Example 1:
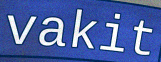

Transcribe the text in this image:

vakit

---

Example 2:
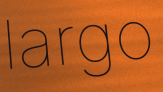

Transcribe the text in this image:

largo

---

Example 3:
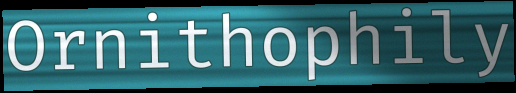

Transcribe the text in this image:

Ornithophily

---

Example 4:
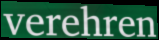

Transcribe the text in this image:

verehren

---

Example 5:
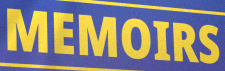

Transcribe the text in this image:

MEMOIRS